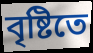
বৃষ্টিতে